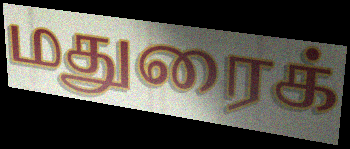
மதுரைக்